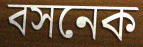
বসনেক